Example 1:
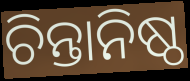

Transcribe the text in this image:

ଚିନ୍ତାନିଷ୍ଠ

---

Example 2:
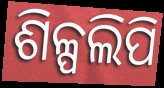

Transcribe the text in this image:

ଶିଳ୍ପଲିପି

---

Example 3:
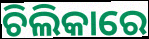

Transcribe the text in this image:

ଚିଲିକାରେ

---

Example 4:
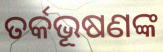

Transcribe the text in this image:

ତର୍କଭୂଷଣଙ୍କ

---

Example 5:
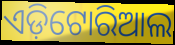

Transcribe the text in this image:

ଏଡ଼ିଟୋରିଆଲ